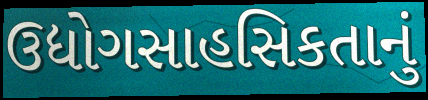
ઉદ્યોગસાહસિકતાનું